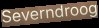
Severndroog